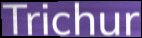
Trichur